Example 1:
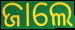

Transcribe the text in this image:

ଜାଲେ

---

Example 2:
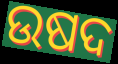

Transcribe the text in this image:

ଉଷଦ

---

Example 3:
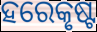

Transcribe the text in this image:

ହରେକୃଷ୍ଟ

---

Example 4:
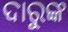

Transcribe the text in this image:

ଦାରୁଙ୍କ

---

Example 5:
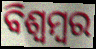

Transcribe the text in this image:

ବିଶ୍ଵମ୍ବର